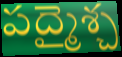
పద్మైశ్చ